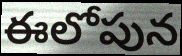
ఈలోపున